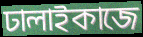
ঢালাইকাজে